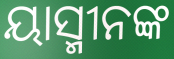
ୟାସ୍ମୀନଙ୍କ